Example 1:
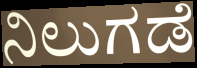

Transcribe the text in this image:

ನಿಲುಗಡೆ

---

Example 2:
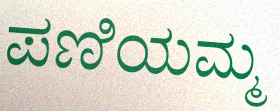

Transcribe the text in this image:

ಪಣಿಯಮ್ಮ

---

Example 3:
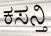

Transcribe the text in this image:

ಕಸನ್ತಿ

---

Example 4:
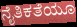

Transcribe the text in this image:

ನೈತಿಕತೆಯೂ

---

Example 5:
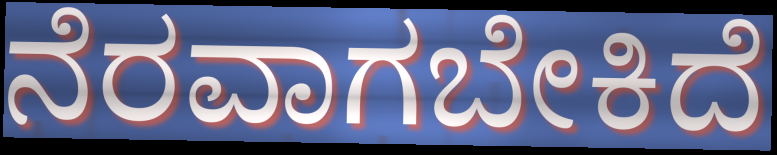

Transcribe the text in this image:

ನೆರವಾಗಬೇಕಿದೆ